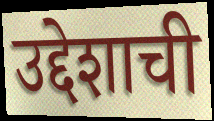
उद्देशाची